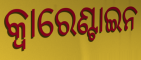
କ୍ୱାରେଣ୍ଟାଇନ